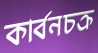
কার্বনচক্র